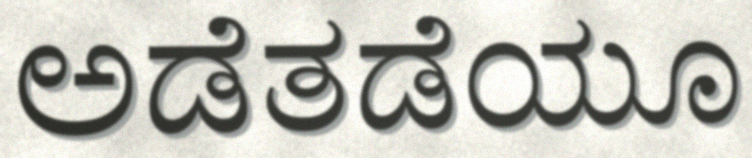
ಅಡೆತಡೆಯೂ